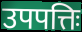
उपपत्तिः